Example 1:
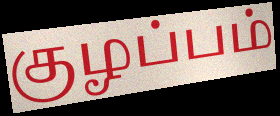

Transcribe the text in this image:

குழப்பம்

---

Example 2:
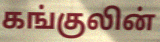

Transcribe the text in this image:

கங்குலின்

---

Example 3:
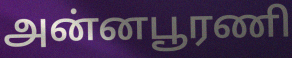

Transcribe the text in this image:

அன்னபூரணி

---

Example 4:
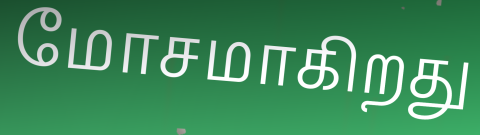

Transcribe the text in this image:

மோசமாகிறது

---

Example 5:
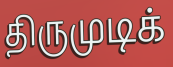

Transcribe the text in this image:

திருமுடிக்